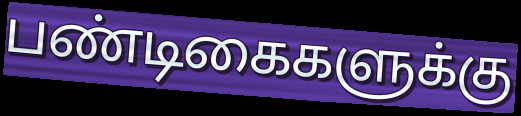
பண்டிகைகளுக்கு